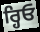
ਰ੍ਹਿਓ